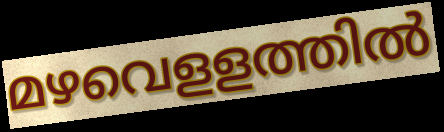
മഴവെളളത്തിൽ